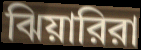
ঝিয়ারিরা